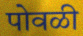
पोवळी